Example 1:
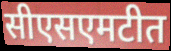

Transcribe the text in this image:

सीएसएमटीत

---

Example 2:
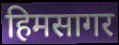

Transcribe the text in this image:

हिमसागर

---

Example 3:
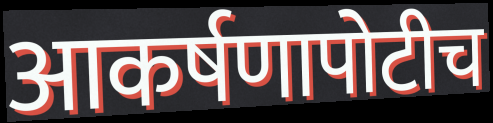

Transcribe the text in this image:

आकर्षणापोटीच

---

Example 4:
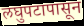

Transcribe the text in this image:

लघुपटापासून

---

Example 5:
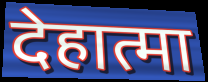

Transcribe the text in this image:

देहात्मा